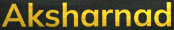
Aksharnad